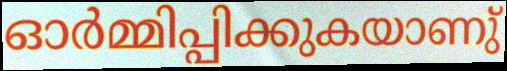
ഓർമ്മിപ്പിക്കുകയാണു്